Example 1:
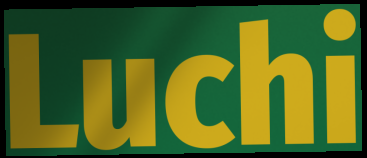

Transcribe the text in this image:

Luchi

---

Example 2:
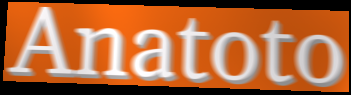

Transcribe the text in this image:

Anatoto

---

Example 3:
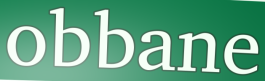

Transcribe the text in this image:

obbane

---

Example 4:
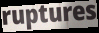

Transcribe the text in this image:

ruptures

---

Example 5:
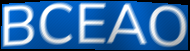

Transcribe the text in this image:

BCEAO